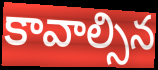
కావాల్సిన